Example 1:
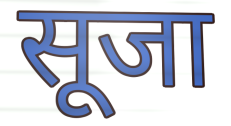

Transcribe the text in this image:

सूजा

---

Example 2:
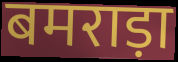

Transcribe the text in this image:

बमराड़ा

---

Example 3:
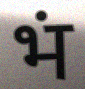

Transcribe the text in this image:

भं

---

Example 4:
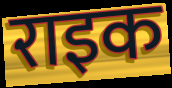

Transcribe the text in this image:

राइक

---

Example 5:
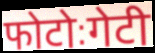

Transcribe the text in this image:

फोटोःगेटी